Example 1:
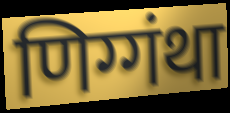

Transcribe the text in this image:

णिग्गंथा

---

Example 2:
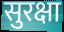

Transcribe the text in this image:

सुरक्षा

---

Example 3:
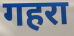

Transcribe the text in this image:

गहरा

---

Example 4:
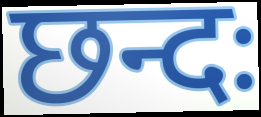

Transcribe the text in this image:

छन्दः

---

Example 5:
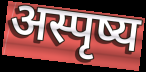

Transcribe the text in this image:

अस्पृष्य